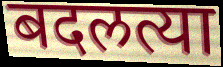
बदलत्या